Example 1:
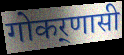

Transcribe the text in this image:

गोकर्णासी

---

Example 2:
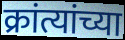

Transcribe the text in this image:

क्रांत्यांच्या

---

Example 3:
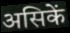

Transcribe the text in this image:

असिकें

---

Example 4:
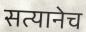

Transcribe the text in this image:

सत्यानेच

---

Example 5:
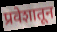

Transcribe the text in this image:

प्रवेशातून